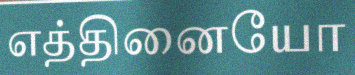
எத்தினையோ